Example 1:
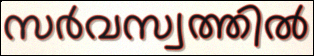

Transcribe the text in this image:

സർവസ്വത്തിൽ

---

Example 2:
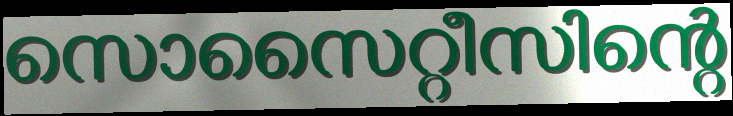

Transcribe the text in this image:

സൊസൈറ്റീസിന്റെ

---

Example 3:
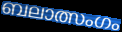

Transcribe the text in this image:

ബലാത്സംഗം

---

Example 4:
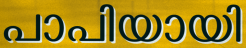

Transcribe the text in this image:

പാപിയായി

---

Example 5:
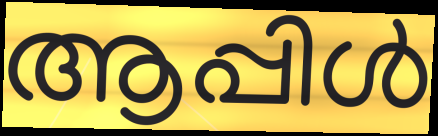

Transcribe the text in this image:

ആപ്പിൾ